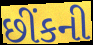
છીંકની